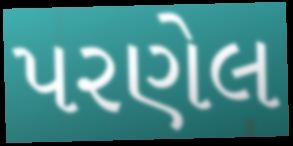
પરણેલ